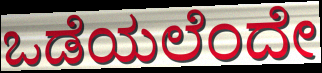
ಒಡೆಯಲೆಂದೇ